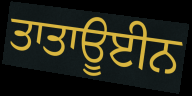
ਤਾਤਾਊਈਨ